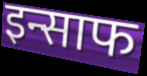
इन्साफ